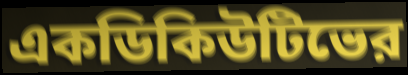
একডিকিউটিভের